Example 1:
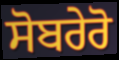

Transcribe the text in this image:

ਸੋਬਰੇਰੋ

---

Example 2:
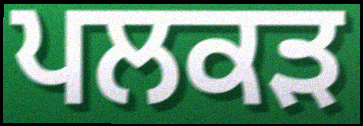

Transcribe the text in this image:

ਪਲਕੜ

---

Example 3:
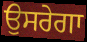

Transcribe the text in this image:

ਉਸਰੇਗਾ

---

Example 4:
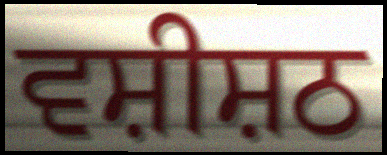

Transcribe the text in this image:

ਵਸ਼ੀਸ਼ਠ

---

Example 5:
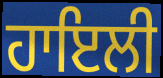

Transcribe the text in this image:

ਹਾਇਲੀ